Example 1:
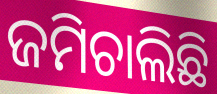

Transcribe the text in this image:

ଜମିଚାଲିଛି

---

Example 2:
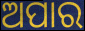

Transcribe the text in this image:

ଅପାର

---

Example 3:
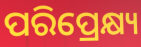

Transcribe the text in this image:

ପରିପ୍ରେକ୍ଷ୍ୟ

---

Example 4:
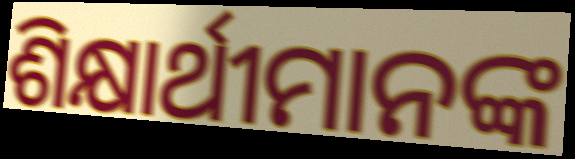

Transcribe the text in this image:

ଶିକ୍ଷାର୍ଥୀମାନଙ୍କ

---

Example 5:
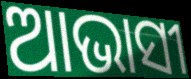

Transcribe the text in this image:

ଆଭାସୀ